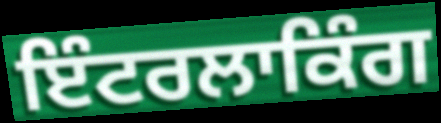
ਇੰਟਰਲਾਕਿੰਗ